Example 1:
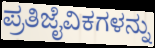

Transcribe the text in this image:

ಪ್ರತಿಜೈವಿಕಗಳನ್ನು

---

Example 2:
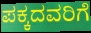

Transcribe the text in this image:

ಪಕ್ಕದವರಿಗೆ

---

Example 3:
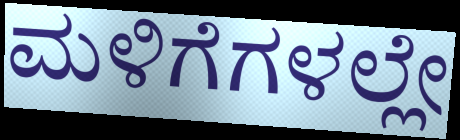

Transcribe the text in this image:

ಮಳಿಗೆಗಳಲ್ಲೇ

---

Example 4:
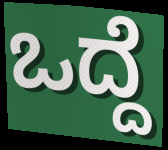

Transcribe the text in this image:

ಒದ್ದೆ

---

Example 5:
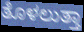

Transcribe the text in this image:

ತೊಳಲುತ್ತಾ